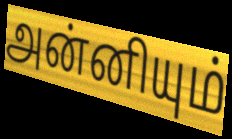
அன்னியும்